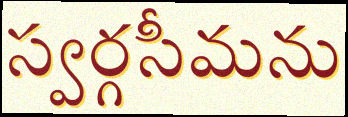
స్వర్గసీమను